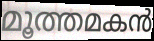
മൂത്തമകൻ